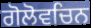
ਗੋਲੋਵਚਿਨ